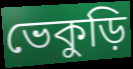
ভেকুড়ি